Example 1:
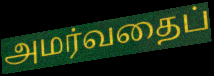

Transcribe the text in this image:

அமர்வதைப்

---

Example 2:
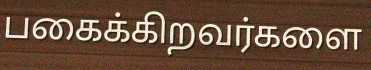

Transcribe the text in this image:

பகைக்கிறவர்களை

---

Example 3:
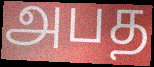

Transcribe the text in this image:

அபத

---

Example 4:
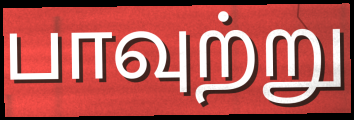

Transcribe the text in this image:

பாவுற்று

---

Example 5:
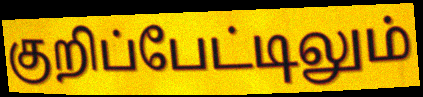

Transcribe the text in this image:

குறிப்பேட்டிலும்